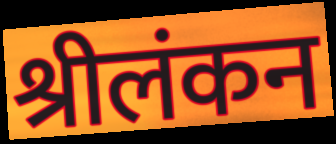
श्रीलंकन